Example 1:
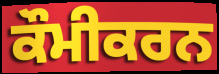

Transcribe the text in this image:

ਕੌਮੀਕਰਨ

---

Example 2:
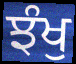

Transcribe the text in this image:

ਝੰਖੁ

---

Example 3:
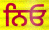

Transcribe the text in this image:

ਨਿਓ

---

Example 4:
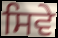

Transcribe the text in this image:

ਸਿਵੇ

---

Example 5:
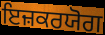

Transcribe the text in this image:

ਇਜ਼ਕਰਯੋਗ